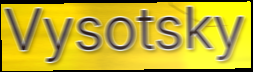
Vysotsky